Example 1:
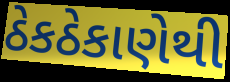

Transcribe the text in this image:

ઠેકઠેકાણેથી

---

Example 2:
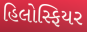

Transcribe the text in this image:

હિલોસ્ફિયર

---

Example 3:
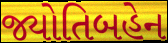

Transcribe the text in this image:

જ્યોતિબહેન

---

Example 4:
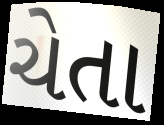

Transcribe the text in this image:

ચેતા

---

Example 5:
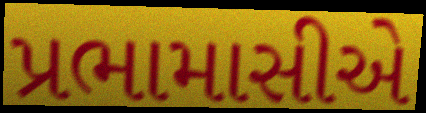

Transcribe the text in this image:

પ્રભામાસીએ